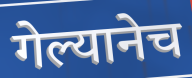
गेल्यानेच